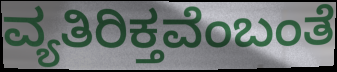
ವ್ಯತಿರಿಕ್ತವೆಂಬಂತೆ